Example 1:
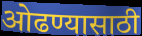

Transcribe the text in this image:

ओढण्यासाठी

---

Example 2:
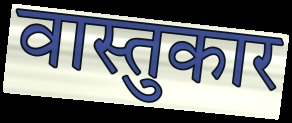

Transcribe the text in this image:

वास्तुकार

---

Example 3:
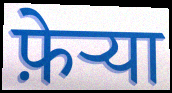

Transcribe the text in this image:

फ़ेर्‍या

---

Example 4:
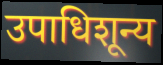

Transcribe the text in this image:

उपाधिशून्य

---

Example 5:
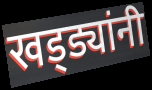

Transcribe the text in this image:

खड्ड्यांनी